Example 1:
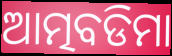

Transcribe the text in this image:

ଆତ୍ମବଡିମା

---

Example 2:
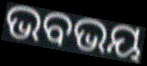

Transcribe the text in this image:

ଭବଭୟ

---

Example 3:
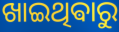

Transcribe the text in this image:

ଖାଇଥିଵାରୁ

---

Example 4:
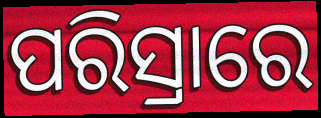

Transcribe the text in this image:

ପରିସ୍ରାରେ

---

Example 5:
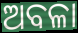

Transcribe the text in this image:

ଅବଳା